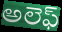
అలెఫ్